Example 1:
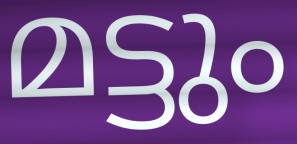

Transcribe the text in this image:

മട്ടും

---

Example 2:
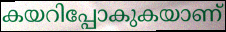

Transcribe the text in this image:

കയറിപ്പോകുകയാണ്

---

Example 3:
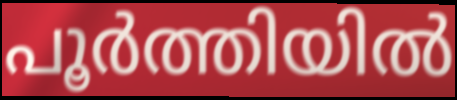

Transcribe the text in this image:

പൂർത്തിയിൽ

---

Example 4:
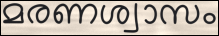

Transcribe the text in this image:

മരണശ്വാസം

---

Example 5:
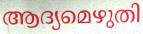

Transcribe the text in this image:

ആദ്യമെഴുതി